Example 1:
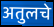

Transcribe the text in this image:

अतुलचे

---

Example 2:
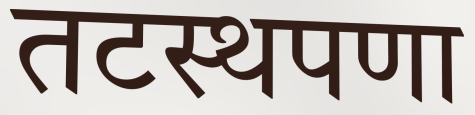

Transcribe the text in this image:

तटस्थपणा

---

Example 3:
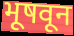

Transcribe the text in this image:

भूषवून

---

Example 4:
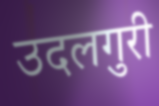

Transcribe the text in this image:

उदलगुरी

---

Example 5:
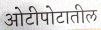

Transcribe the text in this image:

ओटीपोटातील